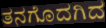
ತನಗೊದಗಿದ